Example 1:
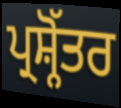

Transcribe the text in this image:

ਪ੍ਰਸ਼੍ਨੋੱਤਰ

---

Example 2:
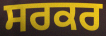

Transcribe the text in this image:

ਸਰਕਰ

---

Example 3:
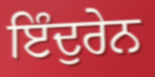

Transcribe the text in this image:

ਇੰਦੁਰੇਨ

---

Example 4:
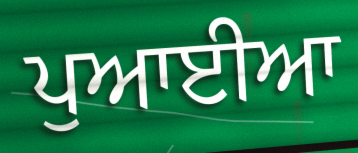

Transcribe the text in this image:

ਪੁਆਈਆ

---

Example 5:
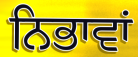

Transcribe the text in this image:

ਨਿਭਾਵਾਂ